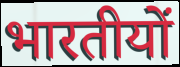
भारतीयों